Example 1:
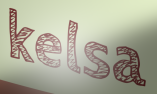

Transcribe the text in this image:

kelsa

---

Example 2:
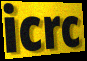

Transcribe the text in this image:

icrc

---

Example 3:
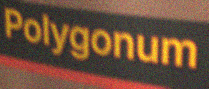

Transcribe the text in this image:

Polygonum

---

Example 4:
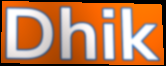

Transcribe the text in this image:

Dhik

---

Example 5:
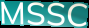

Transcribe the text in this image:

MSSC